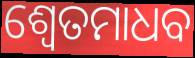
ଶ୍ୱେତମାଧବ